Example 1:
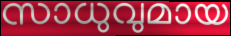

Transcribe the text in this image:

സാധുവുമായ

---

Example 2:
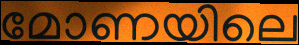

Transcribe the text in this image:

മോണയിലെ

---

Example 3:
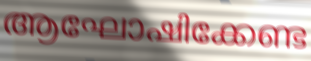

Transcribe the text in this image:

ആഘോഷിക്കേണ്ട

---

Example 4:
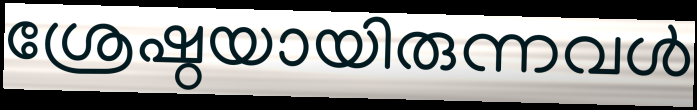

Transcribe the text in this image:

ശ്രേഷ്ഠയായിരുന്നവൾ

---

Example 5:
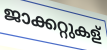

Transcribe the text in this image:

ജാക്കറ്റുകള്